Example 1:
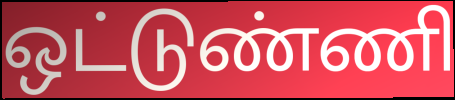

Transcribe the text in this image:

ஒட்டுண்ணி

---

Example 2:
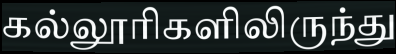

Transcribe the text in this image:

கல்லூரிகளிலிருந்து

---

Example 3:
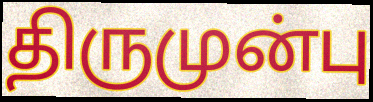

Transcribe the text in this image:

திருமுன்பு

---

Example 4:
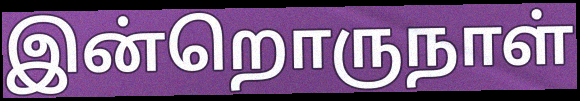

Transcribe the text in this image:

இன்றொருநாள்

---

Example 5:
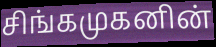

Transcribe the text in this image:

சிங்கமுகனின்